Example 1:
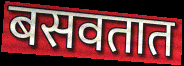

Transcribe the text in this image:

बसवतात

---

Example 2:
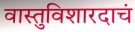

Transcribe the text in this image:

वास्तुविशारदाचं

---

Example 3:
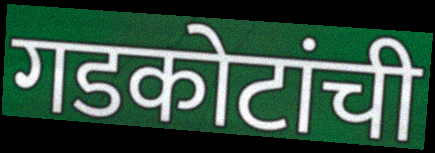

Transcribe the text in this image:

गडकोटांची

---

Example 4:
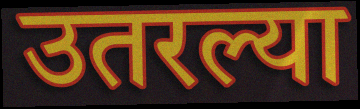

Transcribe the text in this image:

उतरल्या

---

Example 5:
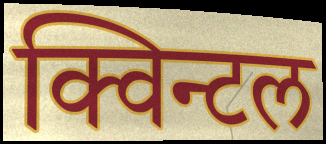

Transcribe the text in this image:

क्विन्टल